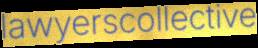
lawyerscollective